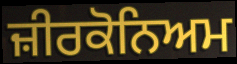
ਜ਼ੀਰਕੋਨਿਅਮ